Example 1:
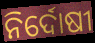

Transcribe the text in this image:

ନିର୍ଦୋଷୀ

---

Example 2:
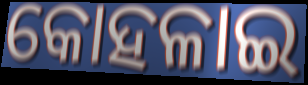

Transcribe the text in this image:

କୋହଳାଇ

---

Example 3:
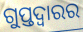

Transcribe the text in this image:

ଗୁପ୍ତଦ୍ୱାରର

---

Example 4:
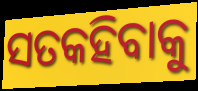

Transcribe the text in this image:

ସତକହିବାକୁ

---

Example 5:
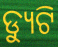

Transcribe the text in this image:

ଡ୍ୟୁଟି